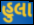
હુલા